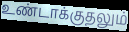
உண்டாக்குதலும்